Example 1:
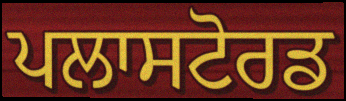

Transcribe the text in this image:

ਪਲਾਸਟੋਰਡ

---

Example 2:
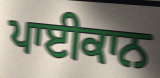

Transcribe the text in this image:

ਪਾਈਕਾਨ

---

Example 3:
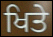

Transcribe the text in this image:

ਖਿਤੇ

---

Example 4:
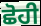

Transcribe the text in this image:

ਛੋਹੀ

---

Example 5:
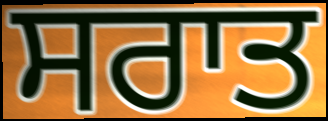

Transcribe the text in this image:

ਸਰਾਤ